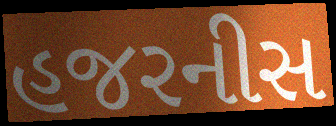
હજરનીસ